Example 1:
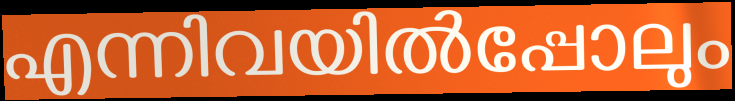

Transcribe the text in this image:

എന്നിവയിൽപ്പോലും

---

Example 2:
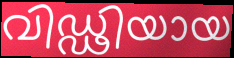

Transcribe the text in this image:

വിഡ്ഢിയായ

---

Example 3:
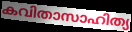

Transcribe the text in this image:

കവിതാസാഹിത്യ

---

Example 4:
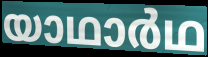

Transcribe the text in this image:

യാഥാർഥ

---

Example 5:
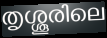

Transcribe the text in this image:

തൃശ്ശൂരിലെ